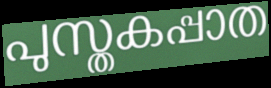
പുസ്തകപ്പാത